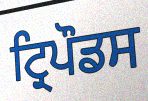
ਟ੍ਰਿਪੌਡਸ